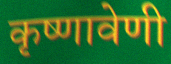
कृष्णावेणी